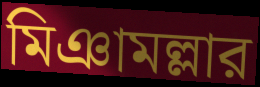
মিঞামল্লার